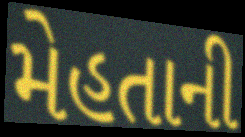
મેહતાની